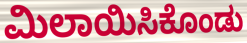
ಮಿಲಾಯಿಸಿಕೊಂಡು